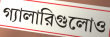
গ্যালারিগুলোও